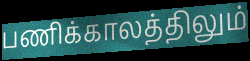
பணிக்காலத்திலும்